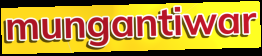
mungantiwar